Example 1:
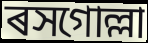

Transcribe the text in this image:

ৰসগোল্লা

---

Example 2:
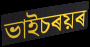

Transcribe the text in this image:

ভাইচৰয়ৰ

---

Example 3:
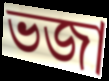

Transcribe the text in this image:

ভজা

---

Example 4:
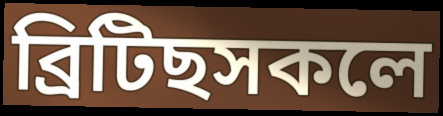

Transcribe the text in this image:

ব্ৰিটিছসকলে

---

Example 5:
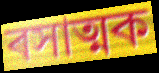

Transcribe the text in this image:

ৰসাত্মক